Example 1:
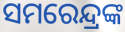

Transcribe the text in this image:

ସମରେନ୍ଦ୍ରଙ୍କ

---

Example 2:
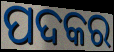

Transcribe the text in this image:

ପଦକର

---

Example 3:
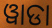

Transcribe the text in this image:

ୱାଡା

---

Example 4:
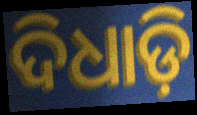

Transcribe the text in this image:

ଦିଧାଡ଼ି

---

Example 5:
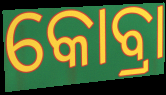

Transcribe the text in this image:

କୋବ୍ରା